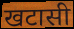
खटासी